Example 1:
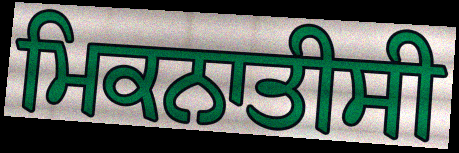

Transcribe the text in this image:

ਮਿਕਨਾਤੀਸੀ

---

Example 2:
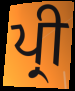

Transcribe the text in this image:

ਪ੍ਰੀ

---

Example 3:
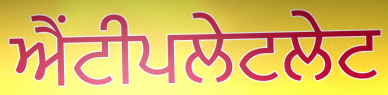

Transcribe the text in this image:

ਐਂਟੀਪਲੇਟਲੇਟ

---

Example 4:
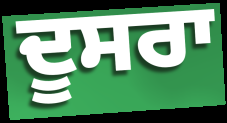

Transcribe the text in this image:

ਦੂਸਰਾ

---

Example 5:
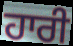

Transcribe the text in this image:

ਹਾਰੀ